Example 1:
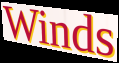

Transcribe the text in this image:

Winds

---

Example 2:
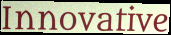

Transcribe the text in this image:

Innovative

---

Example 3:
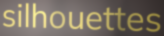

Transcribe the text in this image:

silhouettes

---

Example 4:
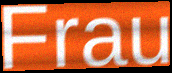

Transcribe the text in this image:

Frau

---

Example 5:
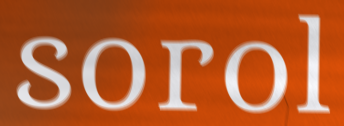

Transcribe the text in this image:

sorol